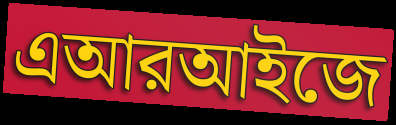
এআরআইজে